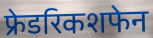
फ्रेडरिकशफेन